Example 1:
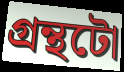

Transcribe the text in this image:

গ্ৰন্থটো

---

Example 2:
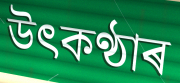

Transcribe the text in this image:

উৎকণ্ঠাৰ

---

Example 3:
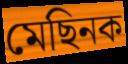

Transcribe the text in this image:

মেছিনক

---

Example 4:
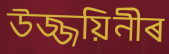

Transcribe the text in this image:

উজ্জয়িনীৰ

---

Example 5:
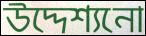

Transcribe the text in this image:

উদ্দেশ্যনো